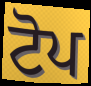
ਟੋਪ